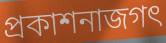
প্রকাশনাজগৎ